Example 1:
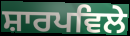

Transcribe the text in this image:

ਸ਼ਾਰਪਵਿਲੇ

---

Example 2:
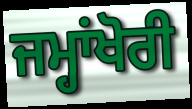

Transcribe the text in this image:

ਜਮ੍ਹਾਂਖੋਰੀ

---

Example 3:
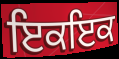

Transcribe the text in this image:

ਇਕਇਕ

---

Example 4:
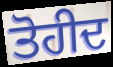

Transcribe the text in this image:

ਤੋਹੀਦ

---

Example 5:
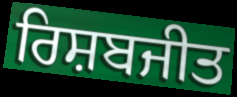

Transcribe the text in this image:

ਰਿਸ਼ਬਜੀਤ